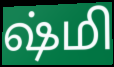
ஷ்மி